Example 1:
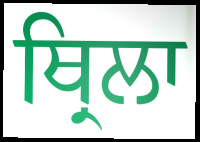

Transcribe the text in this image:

ਥ੍ਰਿਲਾ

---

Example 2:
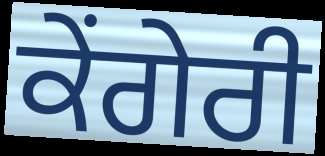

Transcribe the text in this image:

ਕੇਂਗੇਰੀ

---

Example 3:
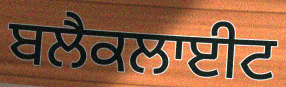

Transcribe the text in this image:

ਬਲੈਕਲਾਈਟ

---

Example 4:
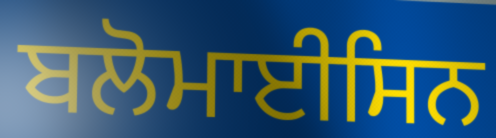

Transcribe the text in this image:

ਬਲੋਮਾਈਸਿਨ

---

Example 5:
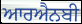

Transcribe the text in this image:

ਆਰਐਨਬੀ